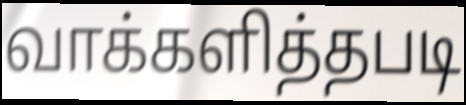
வாக்களித்தபடி